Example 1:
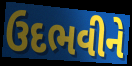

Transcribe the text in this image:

ઉદભવીને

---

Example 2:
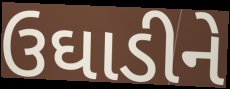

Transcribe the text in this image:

ઉઘાડીને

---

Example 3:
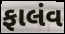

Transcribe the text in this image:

ફાલંવ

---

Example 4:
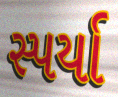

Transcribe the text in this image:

સ્પર્યા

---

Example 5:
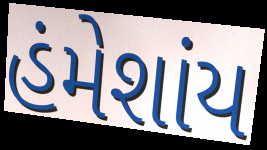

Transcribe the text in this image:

હંમેશાંય